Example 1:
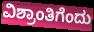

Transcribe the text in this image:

ವಿಶ್ರಾಂತಿಗೆಂದು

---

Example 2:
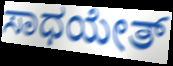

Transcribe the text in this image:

ಸಾಧಯೇತ್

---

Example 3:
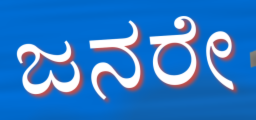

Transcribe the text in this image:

ಜನರೇ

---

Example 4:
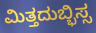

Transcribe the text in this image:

ಮಿತ್ತದುಬ್ಭಿಸ್ಸ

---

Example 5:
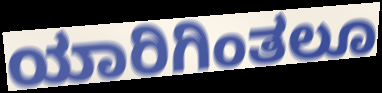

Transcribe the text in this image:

ಯಾರಿಗಿಂತಲೂ